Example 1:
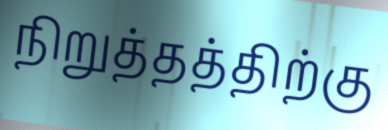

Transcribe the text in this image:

நிறுத்தத்திற்கு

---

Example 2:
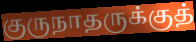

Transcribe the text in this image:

குருநாதருக்குத்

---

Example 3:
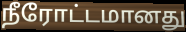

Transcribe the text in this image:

நீரோட்டமானது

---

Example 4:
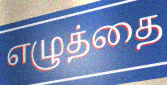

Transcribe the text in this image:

எழுத்தை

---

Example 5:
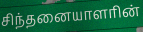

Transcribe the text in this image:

சிந்தனையாளரின்